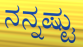
ನನ್ನಷ್ಟು